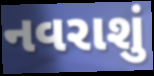
નવરાશું